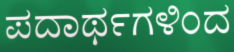
ಪದಾರ್ಥಗಳಿಂದ